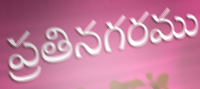
ప్రతినగరము